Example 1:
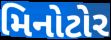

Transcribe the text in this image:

મિનોટોર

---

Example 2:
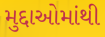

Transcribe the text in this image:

મુદ્દાઓમાંથી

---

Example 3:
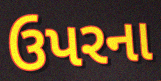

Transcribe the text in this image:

ઉપરના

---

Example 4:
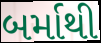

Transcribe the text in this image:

બર્માથી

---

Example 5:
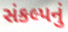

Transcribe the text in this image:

સંકલ્પનું